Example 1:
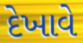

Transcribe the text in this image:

દેખાવે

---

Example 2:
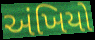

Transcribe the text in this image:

અંખિયો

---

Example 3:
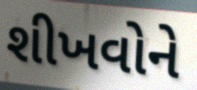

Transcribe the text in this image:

શીખવોને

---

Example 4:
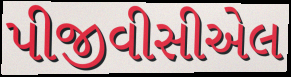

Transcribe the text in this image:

પીજીવીસીએલ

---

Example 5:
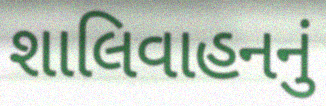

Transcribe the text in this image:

શાલિવાહનનું